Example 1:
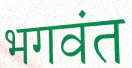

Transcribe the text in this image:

भगवंत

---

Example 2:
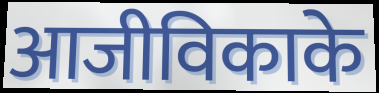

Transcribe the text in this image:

आजीविकाके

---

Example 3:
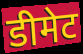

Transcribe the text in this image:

डीमेट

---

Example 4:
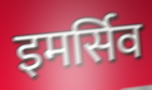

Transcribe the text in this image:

इमर्सिव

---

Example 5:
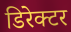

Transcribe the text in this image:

डिरेक्टर